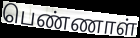
பெண்ணாள்